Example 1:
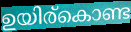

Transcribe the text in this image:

ഉയിര്കൊണ്ട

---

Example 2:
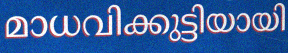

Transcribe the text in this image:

മാധവിക്കുട്ടിയായി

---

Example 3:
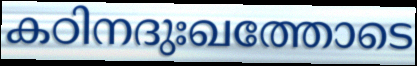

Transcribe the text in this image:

കഠിനദുഃഖത്തോടെ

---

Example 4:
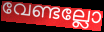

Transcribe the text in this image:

വേണ്ടല്ലോ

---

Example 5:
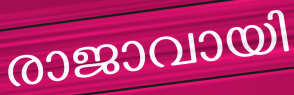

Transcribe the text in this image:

രാജാവായി